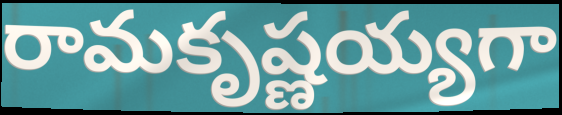
రామకృష్ణయ్యగా